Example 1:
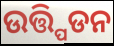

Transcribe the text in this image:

ଉତ୍ତ୍ପିଡନ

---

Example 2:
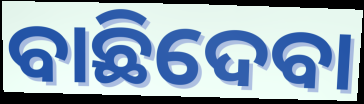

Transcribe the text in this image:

ବାଛିଦେବା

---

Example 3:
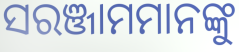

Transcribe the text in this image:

ସରଞ୍ଜାମମାନଙ୍କୁ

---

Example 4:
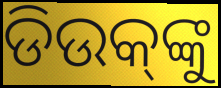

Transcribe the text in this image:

ଡିଉକ୍‌ଙ୍କୁ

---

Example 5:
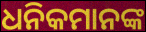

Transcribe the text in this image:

ଧନିକମାନଙ୍କ